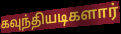
கவுந்தியடிகளார்